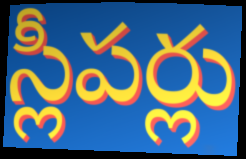
స్లీపర్లు